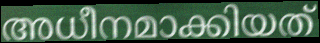
അധീനമാക്കിയത്